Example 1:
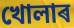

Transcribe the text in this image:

খোলাৰ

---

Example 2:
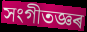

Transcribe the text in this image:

সংগীতজ্ঞৰ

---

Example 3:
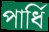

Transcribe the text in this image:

পাৰ্ধি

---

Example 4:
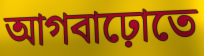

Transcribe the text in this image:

আগবাঢ়োতে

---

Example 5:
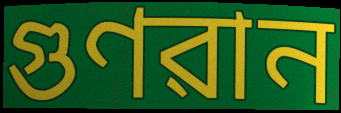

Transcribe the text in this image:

গুণৱান